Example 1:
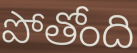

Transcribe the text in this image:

పోతోంది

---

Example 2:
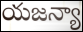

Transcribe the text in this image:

యజన్యా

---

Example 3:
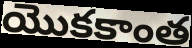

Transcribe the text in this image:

యొకకాంత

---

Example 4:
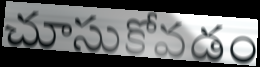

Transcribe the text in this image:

చూసుకోవడం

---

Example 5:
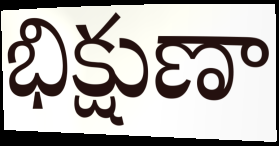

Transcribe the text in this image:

భిక్షుణా